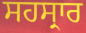
ਸਹਸ੍ਰਾਰ